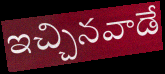
ఇచ్చినవాడే